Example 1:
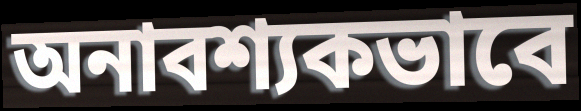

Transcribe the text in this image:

অনাবশ্যকভাবে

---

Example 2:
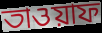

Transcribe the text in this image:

তাওয়াফ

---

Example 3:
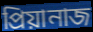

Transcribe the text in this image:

প্রিয়ানাজ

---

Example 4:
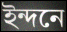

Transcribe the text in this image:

ইন্দনে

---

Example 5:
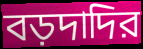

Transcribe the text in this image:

বড়দাদির